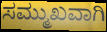
ಸಮ್ಮುಖವಾಗಿ